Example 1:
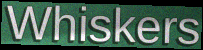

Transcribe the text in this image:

Whiskers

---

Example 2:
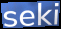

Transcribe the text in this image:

seki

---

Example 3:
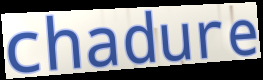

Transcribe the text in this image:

chadure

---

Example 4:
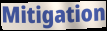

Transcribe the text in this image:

Mitigation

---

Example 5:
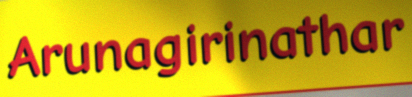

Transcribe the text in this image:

Arunagirinathar